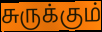
சுருக்கும்